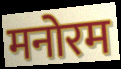
मनोरम